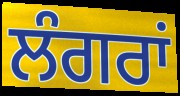
ਲੰਗਰਾਂ